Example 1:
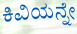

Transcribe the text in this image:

ಕಿವಿಯನ್ನೇ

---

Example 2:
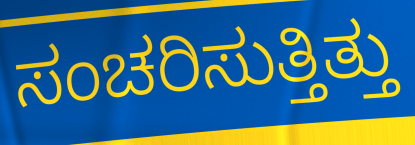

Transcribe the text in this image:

ಸಂಚರಿಸುತ್ತಿತ್ತು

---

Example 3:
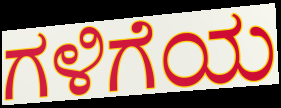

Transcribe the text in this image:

ಗಳಿಗೆಯ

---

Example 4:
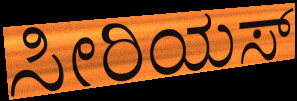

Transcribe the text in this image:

ಸೀರಿಯಸ್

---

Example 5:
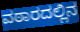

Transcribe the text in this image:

ವಠಾರದಲ್ಲಿನ